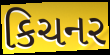
કિચનર